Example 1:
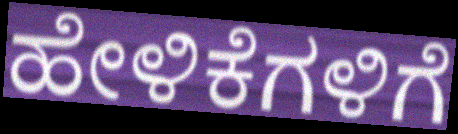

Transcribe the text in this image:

ಹೇಳಿಕೆಗಳಿಗೆ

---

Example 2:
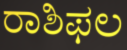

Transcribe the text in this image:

ರಾಶಿಫಲ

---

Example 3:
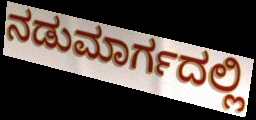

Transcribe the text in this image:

ನಡುಮಾರ್ಗದಲ್ಲಿ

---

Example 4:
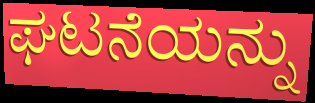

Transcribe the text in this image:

ಘಟನೆಯನ್ನು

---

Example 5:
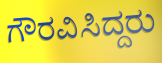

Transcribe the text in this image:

ಗೌರವಿಸಿದ್ದರು